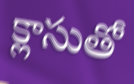
క్లాసుతో